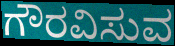
ಗೌರವಿಸುವ